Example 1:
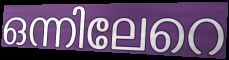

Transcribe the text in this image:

ഒന്നിലേറെ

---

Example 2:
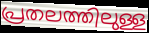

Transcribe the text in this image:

പ്രതലത്തിലുള്ള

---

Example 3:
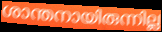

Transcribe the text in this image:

ശാന്തനായിരുന്നില്ല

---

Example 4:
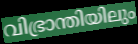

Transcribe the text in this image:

വിഭ്രാന്തിയിലും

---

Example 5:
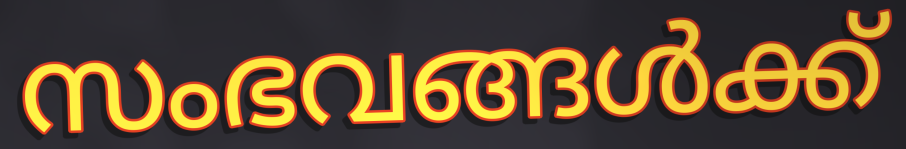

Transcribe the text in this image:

സംഭവങ്ങൾക്ക്